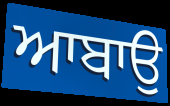
ਆਬਾਉ